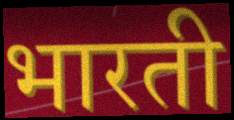
भारती